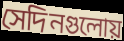
সেদিনগুলোয়